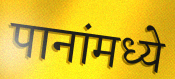
पानांमध्ये